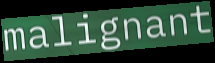
malignant